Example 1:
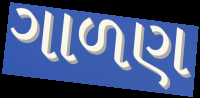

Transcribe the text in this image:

ગાળણ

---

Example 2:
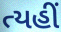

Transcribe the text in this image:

ત્યહીં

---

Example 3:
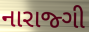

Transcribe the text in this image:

નારાજ્ગી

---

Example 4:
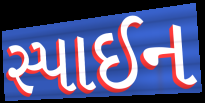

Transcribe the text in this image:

સ્પાઈન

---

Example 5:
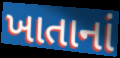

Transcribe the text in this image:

ખાતાનાં